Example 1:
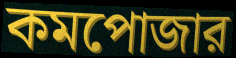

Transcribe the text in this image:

কমপোজার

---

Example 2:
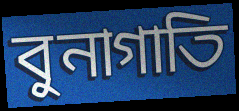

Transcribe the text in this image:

বুনাগাতি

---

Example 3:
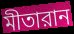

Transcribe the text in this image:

মীতারান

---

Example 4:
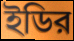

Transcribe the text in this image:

ইডির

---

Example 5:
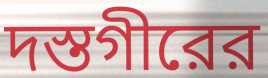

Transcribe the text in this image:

দস্তগীরের